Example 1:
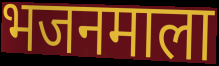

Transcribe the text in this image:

भजनमाला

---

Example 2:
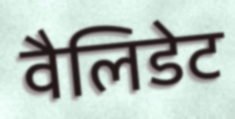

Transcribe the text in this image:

वैलिडेट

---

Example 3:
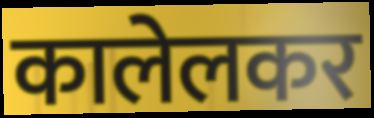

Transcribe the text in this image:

कालेलकर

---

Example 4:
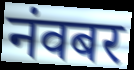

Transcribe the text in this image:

नंवबर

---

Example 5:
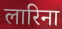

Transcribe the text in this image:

लारिना